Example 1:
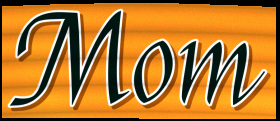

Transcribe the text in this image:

Mom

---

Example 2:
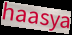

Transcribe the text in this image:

haasya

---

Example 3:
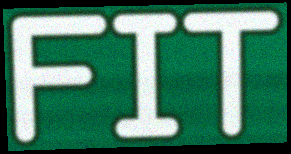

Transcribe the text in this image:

FIT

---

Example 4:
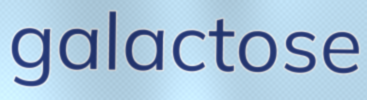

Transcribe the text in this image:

galactose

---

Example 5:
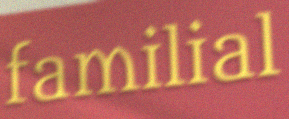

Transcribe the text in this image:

familial